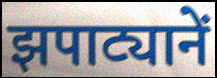
झपाट्यानें